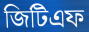
জিটিএফ